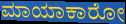
ಮಾಯಾಕಾರೋ